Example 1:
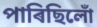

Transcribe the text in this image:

পাৰিছিলোঁ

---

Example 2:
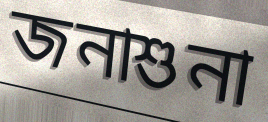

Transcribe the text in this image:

জনাশুনা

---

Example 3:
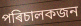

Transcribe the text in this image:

পৰিচালকজন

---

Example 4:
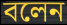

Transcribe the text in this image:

বলেন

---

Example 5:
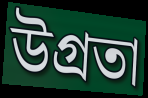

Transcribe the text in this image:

উগ্ৰতা